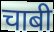
चाबी